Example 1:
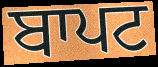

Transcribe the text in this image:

ਬਾਪਟ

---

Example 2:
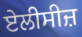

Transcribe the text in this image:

ਏਲੀਸੀਜ਼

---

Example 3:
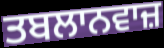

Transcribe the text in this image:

ਤਬਲਾਨਵਾਜ਼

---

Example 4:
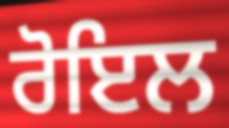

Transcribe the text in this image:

ਰੋਇਲ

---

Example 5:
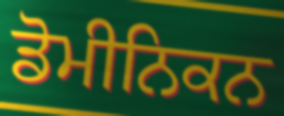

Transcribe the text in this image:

ਡੋਮੀਨਿਕਨ